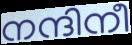
നന്ദിനീ